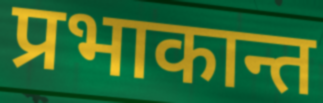
प्रभाकान्त